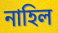
নাহিল